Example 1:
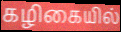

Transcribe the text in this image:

கழிகையில்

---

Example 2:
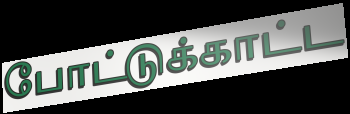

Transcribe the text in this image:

போட்டுக்காட்ட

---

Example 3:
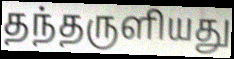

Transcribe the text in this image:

தந்தருளியது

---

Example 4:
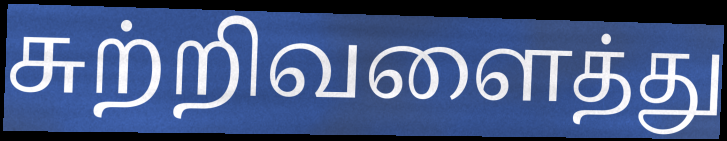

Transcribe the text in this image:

சுற்றிவளைத்து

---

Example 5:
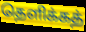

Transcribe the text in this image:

தெளிக்கத்